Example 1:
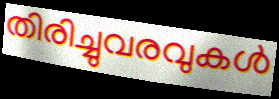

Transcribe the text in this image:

തിരിച്ചുവരവുകൾ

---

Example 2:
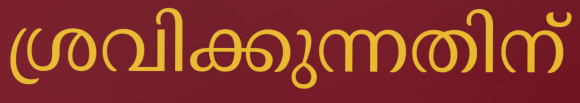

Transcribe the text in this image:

ശ്രവിക്കുന്നതിന്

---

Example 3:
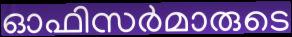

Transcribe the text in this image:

ഓഫിസർമാരുടെ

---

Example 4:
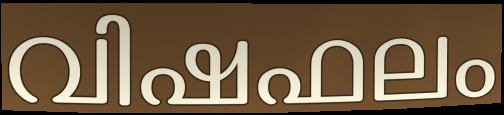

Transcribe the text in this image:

വിഷഫലം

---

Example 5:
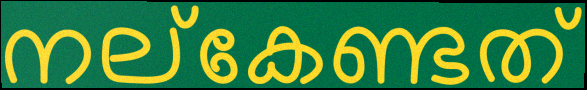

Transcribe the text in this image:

നല്കേണ്ടത്